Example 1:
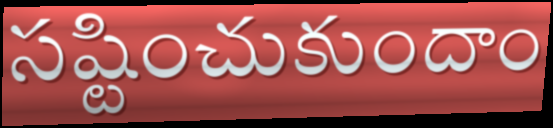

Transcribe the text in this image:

సష్టించుకుందాం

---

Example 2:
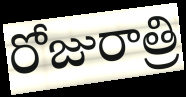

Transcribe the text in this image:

రోజురాత్రి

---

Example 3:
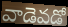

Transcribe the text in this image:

వాడెవడో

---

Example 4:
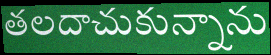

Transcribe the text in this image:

తలదాచుకున్నాను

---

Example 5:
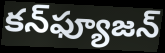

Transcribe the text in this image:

కన్‌ఫ్యూజన్